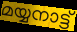
മയ്യനാട്ട്